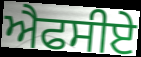
ਐਫਸੀਏ